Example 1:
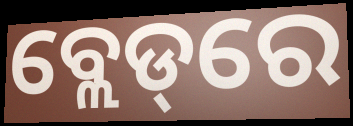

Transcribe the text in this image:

ବ୍ଲେଡ୍‌ରେ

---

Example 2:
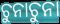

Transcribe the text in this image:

ଚୁନାଚୁନା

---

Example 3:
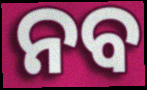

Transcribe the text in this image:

ନବ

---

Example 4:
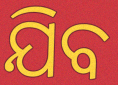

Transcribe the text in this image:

ଯିବ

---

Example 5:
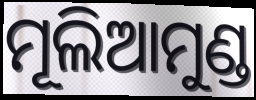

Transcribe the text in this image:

ମୂଲିଆମୁଣ୍ଡ